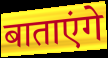
बाताएंगे